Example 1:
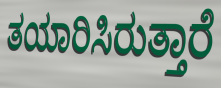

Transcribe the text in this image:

ತಯಾರಿಸಿರುತ್ತಾರೆ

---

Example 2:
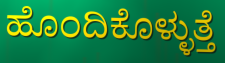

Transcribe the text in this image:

ಹೊಂದಿಕೊಳ್ಳುತ್ತೆ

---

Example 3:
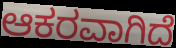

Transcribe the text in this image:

ಆಕರವಾಗಿದೆ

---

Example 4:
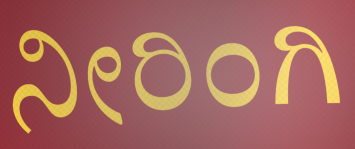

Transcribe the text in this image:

ನೀರಿಂಗಿ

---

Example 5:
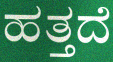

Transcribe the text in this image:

ಹತ್ತದೆ